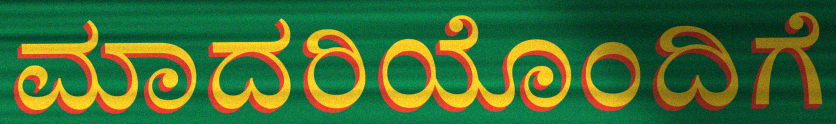
ಮಾದರಿಯೊಂದಿಗೆ